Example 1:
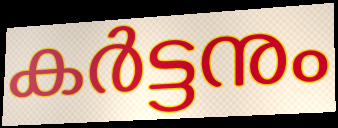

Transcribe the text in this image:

കർട്ടനും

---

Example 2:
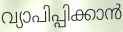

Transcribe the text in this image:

വ്യാപിപ്പിക്കാൻ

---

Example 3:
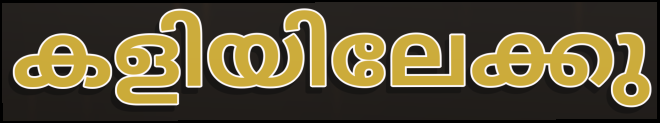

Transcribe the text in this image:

കളിയിലേക്കു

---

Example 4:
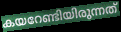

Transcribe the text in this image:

കയറേണ്ടിയിരുന്നത്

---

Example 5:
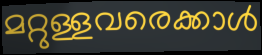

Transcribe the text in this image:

മറ്റുള്ളവരെക്കാൾ